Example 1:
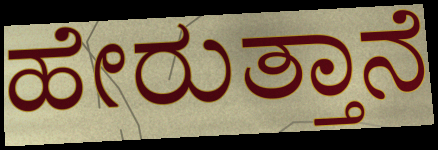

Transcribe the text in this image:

ಹೇರುತ್ತಾನೆ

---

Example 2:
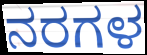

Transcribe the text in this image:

ನರಗಳ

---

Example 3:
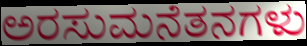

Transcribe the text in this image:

ಅರಸುಮನೆತನಗಳು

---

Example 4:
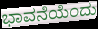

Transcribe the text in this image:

ಭಾವನೆಯೆಂದು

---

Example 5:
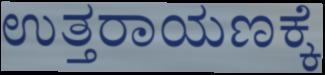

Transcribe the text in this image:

ಉತ್ತರಾಯಣಕ್ಕೆ